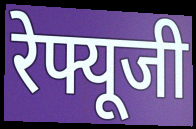
रेफ्यूजी